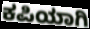
ಕಪಿಯಾಗಿ